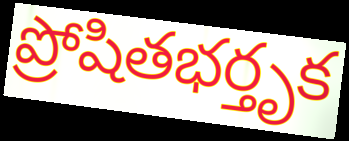
ప్రోషితభర్తృక